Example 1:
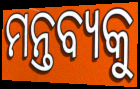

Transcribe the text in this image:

ମନ୍ତବ୍ୟକୁ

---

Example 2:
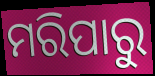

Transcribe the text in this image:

ମରିପାରୁ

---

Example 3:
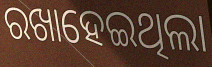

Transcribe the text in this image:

ରଖାହେଇଥିଲା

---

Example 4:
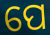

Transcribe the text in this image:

ପେ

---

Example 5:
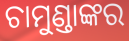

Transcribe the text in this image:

ଚାମୁଣ୍ଡାଙ୍କର